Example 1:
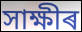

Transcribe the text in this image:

সাক্ষীৰ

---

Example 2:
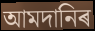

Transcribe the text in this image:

আমদানিৰ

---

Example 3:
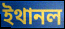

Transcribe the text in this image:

ইথানল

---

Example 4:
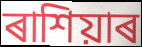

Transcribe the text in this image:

ৰাশিয়াৰ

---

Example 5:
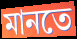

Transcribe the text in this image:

মানতে